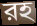
রহ